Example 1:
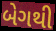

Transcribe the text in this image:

બેગથી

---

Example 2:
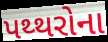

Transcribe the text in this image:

પથ્થરોના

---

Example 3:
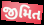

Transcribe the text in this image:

જીમિત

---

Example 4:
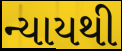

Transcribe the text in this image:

ન્યાયથી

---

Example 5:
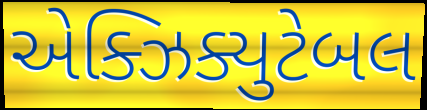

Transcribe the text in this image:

એક્ઝિક્યુટેબલ